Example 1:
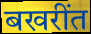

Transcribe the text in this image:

बखरींत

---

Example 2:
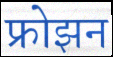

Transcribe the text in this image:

फ्रोझन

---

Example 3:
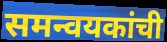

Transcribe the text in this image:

समन्वयकांची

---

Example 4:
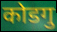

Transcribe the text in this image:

कोडगु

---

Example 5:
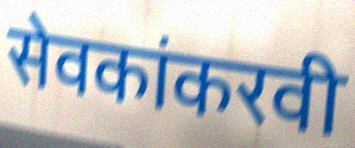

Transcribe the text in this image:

सेवकांकरवी